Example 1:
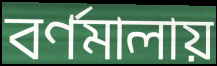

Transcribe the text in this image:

বর্ণমালায়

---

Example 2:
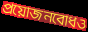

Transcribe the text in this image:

প্রয়োজনবোধও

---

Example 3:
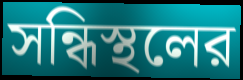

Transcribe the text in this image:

সন্ধিস্থলের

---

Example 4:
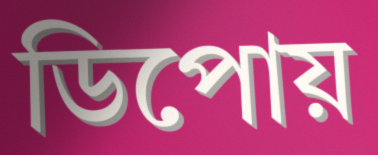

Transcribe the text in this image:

ডিপোয়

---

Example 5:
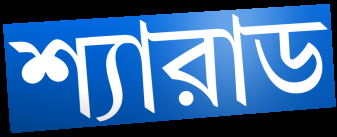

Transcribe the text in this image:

শ্যারাড